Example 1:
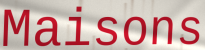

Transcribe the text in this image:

Maisons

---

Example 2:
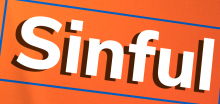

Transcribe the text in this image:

Sinful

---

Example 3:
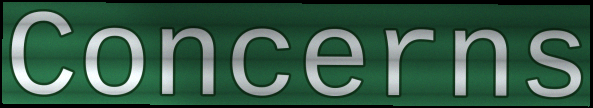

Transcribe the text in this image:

Concerns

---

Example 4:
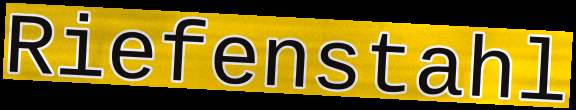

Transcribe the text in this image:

Riefenstahl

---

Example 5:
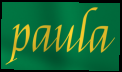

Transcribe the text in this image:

paula